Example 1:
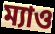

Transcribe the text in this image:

ম্যাও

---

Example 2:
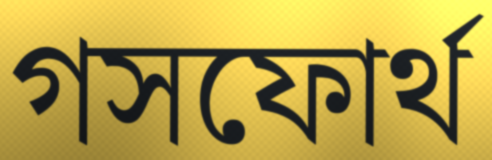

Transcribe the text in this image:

গসফোর্থ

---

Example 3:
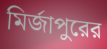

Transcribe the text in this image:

মির্জাপুরের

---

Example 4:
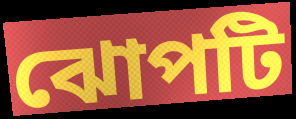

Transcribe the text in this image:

ঝোপটি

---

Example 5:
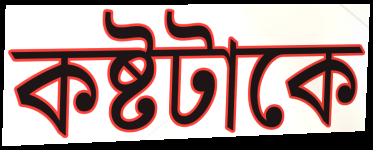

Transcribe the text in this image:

কষ্টটাকে